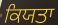
ਕਿਯਤਾ